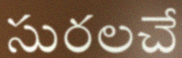
సురలచే